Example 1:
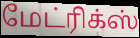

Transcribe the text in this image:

மேட்ரிக்ஸ்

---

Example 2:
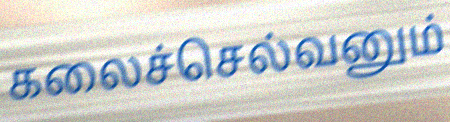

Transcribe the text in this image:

கலைச்செல்வனும்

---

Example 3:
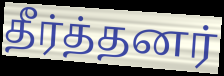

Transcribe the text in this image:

தீர்த்தனர்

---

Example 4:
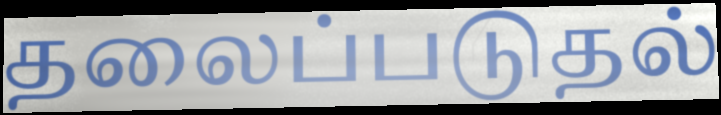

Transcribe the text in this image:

தலைப்படுதல்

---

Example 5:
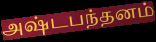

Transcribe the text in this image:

அஷ்டபந்தனம்